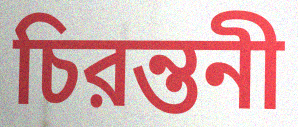
চিরন্তনী